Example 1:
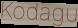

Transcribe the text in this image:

Kodagu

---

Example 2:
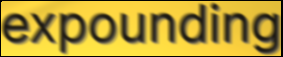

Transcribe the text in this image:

expounding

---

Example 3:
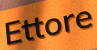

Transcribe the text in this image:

Ettore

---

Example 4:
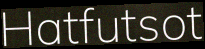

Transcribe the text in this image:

Hatfutsot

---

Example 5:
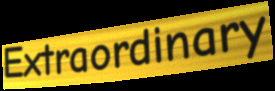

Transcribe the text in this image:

Extraordinary